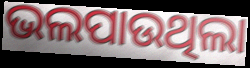
ଭଲପାଉଥିଲା